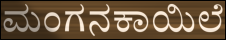
ಮಂಗನಕಾಯಿಲೆ